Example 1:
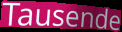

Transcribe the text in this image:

Tausende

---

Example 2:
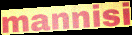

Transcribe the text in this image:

mannisi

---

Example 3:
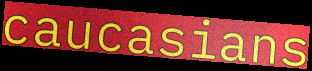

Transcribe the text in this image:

caucasians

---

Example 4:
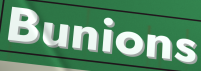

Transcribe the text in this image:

Bunions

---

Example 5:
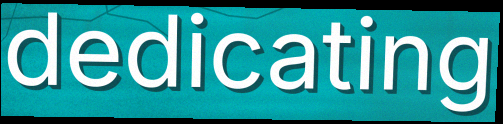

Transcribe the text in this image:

dedicating